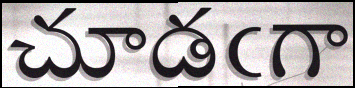
చూడఁగా